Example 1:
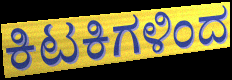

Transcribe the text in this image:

ಕಿಟಕಿಗಳಿಂದ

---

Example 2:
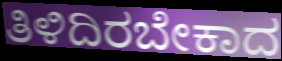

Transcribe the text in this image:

ತಿಳಿದಿರಬೇಕಾದ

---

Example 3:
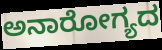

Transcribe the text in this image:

ಅನಾರೋಗ್ಯದ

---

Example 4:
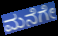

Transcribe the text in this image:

ಮನೆಗೇ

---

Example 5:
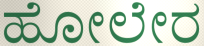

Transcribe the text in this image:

ಹೋಲೇರ